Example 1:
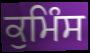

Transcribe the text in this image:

ਕੁਮਿੰਸ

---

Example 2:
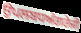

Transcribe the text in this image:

ਉਪਲਬਧਅੰਗਰੇਜ਼ੀ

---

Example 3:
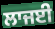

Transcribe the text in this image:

ਲਾਜਈ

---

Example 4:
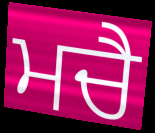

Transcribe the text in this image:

ਮਚੈ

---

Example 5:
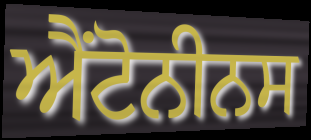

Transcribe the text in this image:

ਐਂਟੋਨੀਨਸ